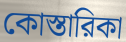
কোস্তারিকা